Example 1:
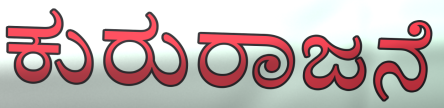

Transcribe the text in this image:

ಕುರುರಾಜನೆ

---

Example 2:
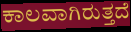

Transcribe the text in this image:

ಕಾಲವಾಗಿರುತ್ತದೆ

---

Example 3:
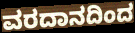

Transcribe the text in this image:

ವರದಾನದಿಂದ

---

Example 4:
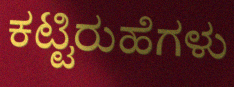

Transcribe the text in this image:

ಕಟ್ಟಿರುಹೆಗಳು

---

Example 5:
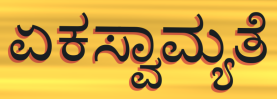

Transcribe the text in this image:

ಏಕಸ್ವಾಮ್ಯತೆ